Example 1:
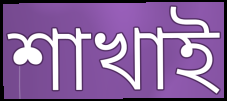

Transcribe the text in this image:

শাখাই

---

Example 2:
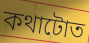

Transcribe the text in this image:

কথাটোত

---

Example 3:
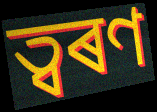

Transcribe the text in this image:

ত্বৰণ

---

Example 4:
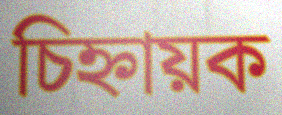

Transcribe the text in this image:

চিহ্নায়ক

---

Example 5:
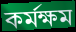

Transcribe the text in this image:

কৰ্মক্ষম